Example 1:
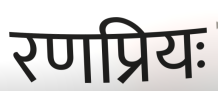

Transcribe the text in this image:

रणप्रियः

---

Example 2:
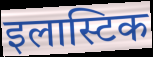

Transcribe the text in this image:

इलास्टिक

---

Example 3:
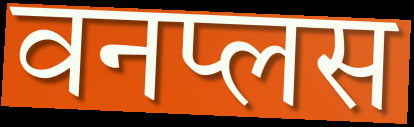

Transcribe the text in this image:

वनप्लस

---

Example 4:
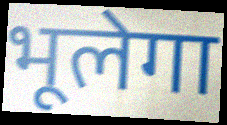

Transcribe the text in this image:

भूलेगा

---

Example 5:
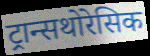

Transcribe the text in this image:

ट्रान्सथोरेसिक